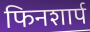
फिनशार्प